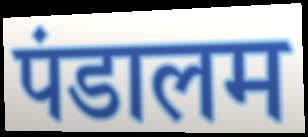
पंडालम